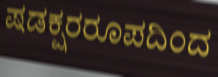
ಷಡಕ್ಷರರೂಪದಿಂದ